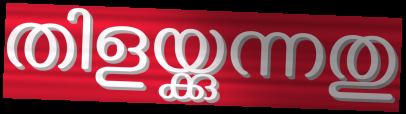
തിളയ്ക്കുന്നതു